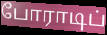
போராடிப்